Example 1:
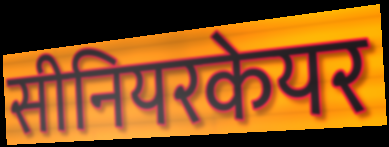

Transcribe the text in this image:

सीनियरकेयर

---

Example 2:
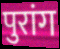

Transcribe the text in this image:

पुरांग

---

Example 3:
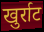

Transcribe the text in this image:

खुर्राट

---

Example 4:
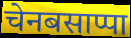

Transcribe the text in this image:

चेनबसाप्पा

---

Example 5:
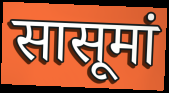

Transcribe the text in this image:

सासूमां